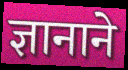
ज्ञानाने